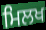
ਮਿਲਖ